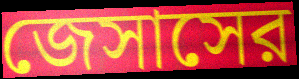
জেসাসের